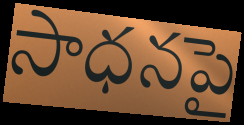
సాధనపై